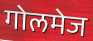
गोलमेज